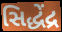
સિદ્ધેંદ્ર